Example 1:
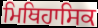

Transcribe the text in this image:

ਮਿਥਿਹਾਸਿਕ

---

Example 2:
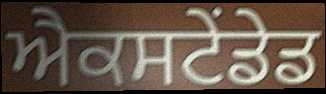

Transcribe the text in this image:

ਐਕਸਟੇਂਡੇਡ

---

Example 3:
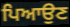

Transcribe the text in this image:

ਪਿਆਉਣ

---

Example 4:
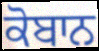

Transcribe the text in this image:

ਕੋਬਾਨ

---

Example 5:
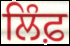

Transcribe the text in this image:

ਲਿੰਫ਼